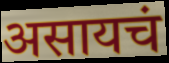
असायचं